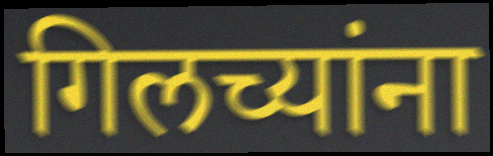
गिलच्यांना